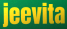
jeevita